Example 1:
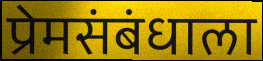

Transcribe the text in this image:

प्रेमसंबंधाला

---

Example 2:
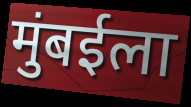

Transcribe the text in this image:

मुंबईला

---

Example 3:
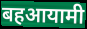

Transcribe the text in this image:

बहआयामी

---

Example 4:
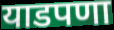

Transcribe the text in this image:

याडपणा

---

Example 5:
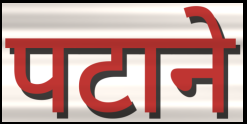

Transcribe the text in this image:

पटाने